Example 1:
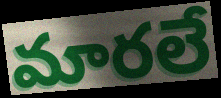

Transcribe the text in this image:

మారలే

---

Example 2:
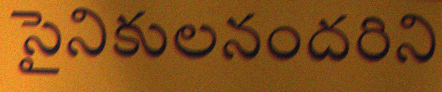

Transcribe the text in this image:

సైనికులనందరిని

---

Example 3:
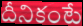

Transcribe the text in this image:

దీనికంటే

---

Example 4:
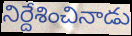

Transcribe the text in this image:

నిర్దేశించినాడు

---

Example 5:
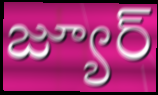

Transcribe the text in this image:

జ్యూర్